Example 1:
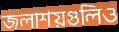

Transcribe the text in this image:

জলাশয়গুলিও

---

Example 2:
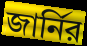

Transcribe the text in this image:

জার্নির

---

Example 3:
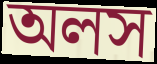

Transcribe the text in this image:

অলস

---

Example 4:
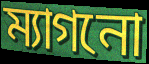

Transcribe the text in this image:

ম্যাগনো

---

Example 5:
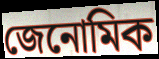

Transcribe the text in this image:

জেনোমিক